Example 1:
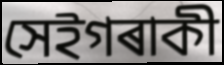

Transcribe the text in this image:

সেইগৰাকী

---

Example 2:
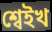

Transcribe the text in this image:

শ্বেইখ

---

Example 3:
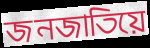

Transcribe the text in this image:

জনজাতিয়ে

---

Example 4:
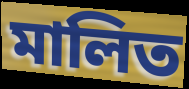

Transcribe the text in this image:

মালিত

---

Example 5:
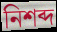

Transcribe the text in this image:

নিশব্দ